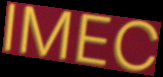
IMEC